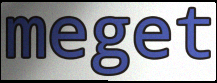
meget